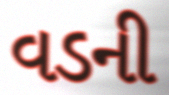
વડની